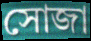
সোজা